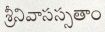
శ్రీనివాసస్సతాం